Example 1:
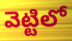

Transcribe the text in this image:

వెట్టిలో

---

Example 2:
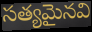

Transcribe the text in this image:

సత్యమైనవి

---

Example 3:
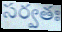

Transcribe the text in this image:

సర్వతః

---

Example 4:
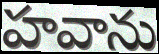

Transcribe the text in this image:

హవాను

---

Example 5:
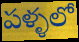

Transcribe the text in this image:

పళ్ళలో